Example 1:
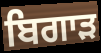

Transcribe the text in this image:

ਬਿਗਾੜ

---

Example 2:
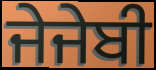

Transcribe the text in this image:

ਜੇਜੇਬੀ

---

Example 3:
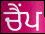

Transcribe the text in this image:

ਚੈਂਪ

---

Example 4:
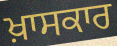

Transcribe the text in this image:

ਖ਼ਾਸਕਾਰ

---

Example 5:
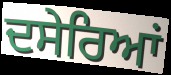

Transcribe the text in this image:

ਦਸੇਰਿਆਂ